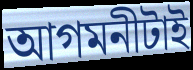
আগমনীটাই